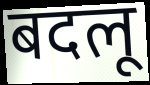
बदलू